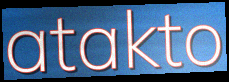
atakto